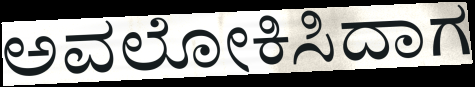
ಅವಲೋಕಿಸಿದಾಗ